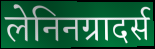
लेनिनग्रादर्स